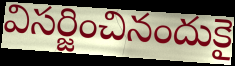
విసర్జించినందుకై